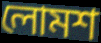
লোমশ